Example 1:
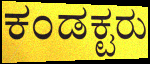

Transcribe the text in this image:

ಕಂಡಕ್ಟರು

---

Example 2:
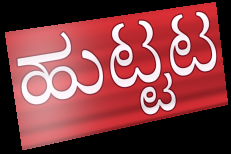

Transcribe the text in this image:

ಹುಟ್ಟಟ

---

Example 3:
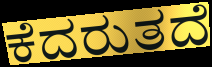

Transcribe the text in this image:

ಕೆದರುತದೆ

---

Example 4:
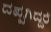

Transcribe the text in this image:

ದಪ್ಪಗಿದ್ದರೆ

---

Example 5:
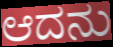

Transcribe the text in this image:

ಆದನು